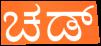
ಚಡ್